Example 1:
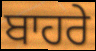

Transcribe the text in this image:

ਬਾਹਰੇ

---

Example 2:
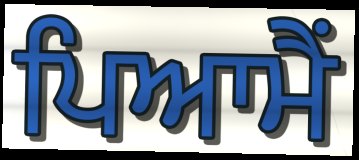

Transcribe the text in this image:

ਪਿਆਮੈਂ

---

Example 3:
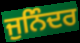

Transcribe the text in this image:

ਜੁਨਿੰਦਰ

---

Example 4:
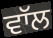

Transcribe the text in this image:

ਵਾੱਲ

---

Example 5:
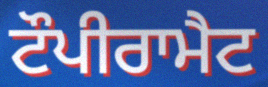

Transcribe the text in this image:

ਟੌਪੀਰਾਮੈਟ